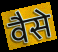
वैसे